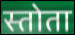
स्तोता